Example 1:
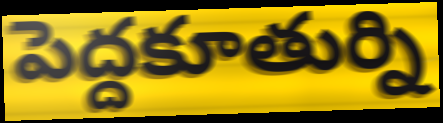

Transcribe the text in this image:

పెద్దకూతుర్ని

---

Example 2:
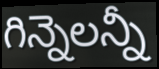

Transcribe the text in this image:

గిన్నెలన్నీ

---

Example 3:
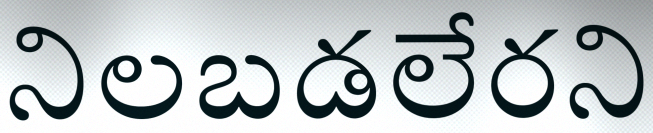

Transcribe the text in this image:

నిలబడలేరని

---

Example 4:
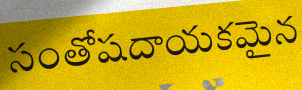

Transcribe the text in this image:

సంతోషదాయకమైన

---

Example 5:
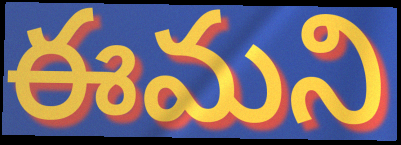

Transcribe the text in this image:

ఈమని